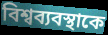
বিশ্বব্যবস্থাকে